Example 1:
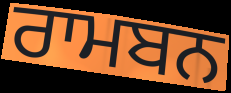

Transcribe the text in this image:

ਰਾਮਬਨ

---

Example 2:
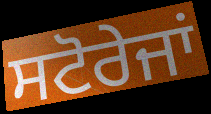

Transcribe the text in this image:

ਸਟੋਰੇਜਾਂ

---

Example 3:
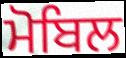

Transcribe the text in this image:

ਮੋਬਿਲ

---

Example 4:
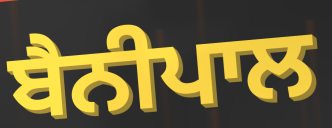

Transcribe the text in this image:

ਬੈਨੀਪਾਲ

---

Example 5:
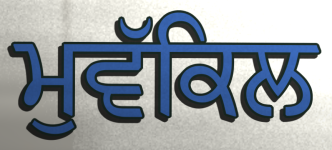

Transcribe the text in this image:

ਮੁਵੱਕਿਲ